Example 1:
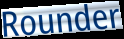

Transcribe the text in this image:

Rounder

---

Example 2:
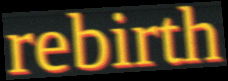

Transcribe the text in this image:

rebirth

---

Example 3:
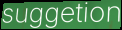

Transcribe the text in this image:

suggetion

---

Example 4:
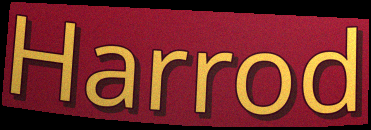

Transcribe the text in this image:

Harrod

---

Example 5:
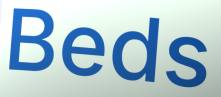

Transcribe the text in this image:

Beds